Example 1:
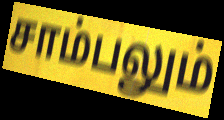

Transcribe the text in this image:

சாம்பலும்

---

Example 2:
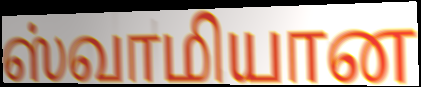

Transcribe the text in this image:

ஸ்வாமியான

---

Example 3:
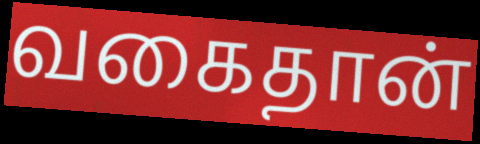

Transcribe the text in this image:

வகைதான்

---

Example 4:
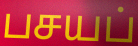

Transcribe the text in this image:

பசயப்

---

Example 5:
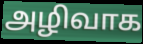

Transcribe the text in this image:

அழிவாக